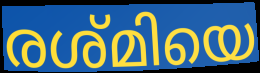
രശ്മിയെ